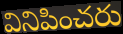
వినిపించరు